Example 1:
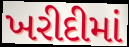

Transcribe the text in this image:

ખરીદીમાં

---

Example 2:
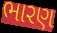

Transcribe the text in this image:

ભારણ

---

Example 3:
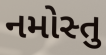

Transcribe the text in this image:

નમોસ્તુ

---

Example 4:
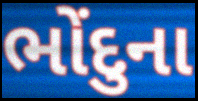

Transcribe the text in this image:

ભોંદુના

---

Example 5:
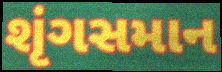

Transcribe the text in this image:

શૃંગસમાન